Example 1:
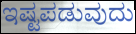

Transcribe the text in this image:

ಇಷ್ಟಪಡುವುದು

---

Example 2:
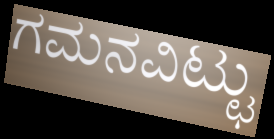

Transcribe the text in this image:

ಗಮನವಿಟ್ಟು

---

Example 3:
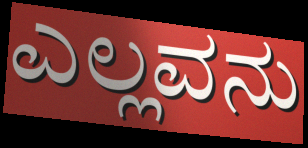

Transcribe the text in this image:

ಎಲ್ಲವನು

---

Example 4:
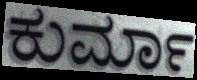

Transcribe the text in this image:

ಕುರ್ಮಾ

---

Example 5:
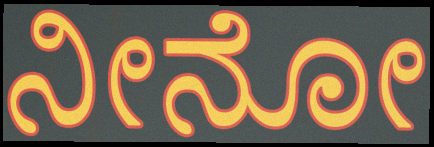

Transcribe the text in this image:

ನೀನೋ